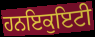
ਹਨਇਕੁਇਟੀ